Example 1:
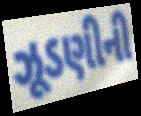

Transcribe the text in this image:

ઝૂડણીની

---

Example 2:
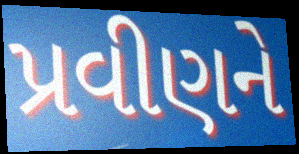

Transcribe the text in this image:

પ્રવીણને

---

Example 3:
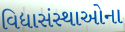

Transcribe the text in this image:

વિદ્યાસંસ્થાઓના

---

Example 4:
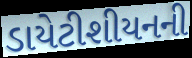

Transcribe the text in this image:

ડાયેટીશીયનની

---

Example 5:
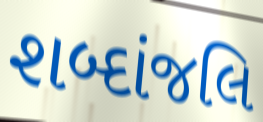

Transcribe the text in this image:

શબ્દાંજલિ